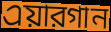
এয়ারগান